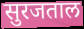
सुरजताल